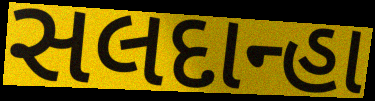
સલદાન્હા